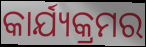
କାର୍ଯ୍ୟକ୍ରମର